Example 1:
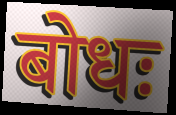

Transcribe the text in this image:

बोधः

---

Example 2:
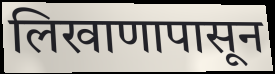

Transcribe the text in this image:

लिखाणापासून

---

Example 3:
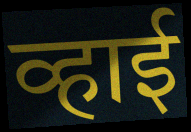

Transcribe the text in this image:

व्हाई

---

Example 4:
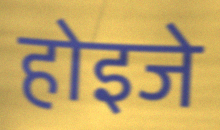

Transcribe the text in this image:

होइजे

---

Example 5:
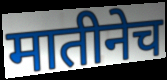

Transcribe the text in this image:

मातीनेच